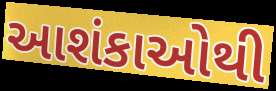
આશંકાઓથી